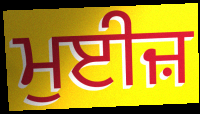
ਮੁਈਜ਼